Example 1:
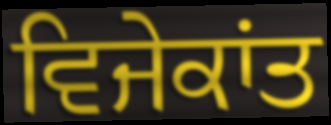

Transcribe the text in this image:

ਵਿਜੇਕਾਂਤ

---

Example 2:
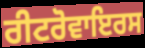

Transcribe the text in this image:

ਰੀਟਰੋਵਾਇਰਸ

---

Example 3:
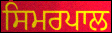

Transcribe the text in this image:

ਸਿਮਰਪਾਲ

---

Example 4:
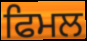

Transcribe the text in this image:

ਫਿਮਲ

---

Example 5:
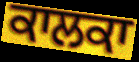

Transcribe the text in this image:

ਕਾਲਕਾ